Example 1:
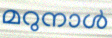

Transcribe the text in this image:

മറുനാൾ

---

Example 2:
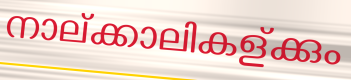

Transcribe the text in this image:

നാല്ക്കാലികള്ക്കും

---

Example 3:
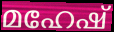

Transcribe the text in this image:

മഹേഷ്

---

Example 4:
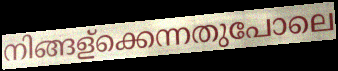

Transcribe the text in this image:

നിങ്ങള്ക്കെന്നതുപോലെ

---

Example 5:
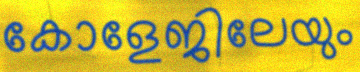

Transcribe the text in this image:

കോളേജിലേയും